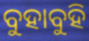
ବୁହାବୁହି